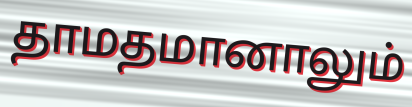
தாமதமானாலும்